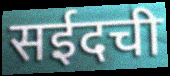
सईदची